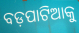
ବଡ଼ପାଟିଆକୁ